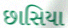
છાસિયા